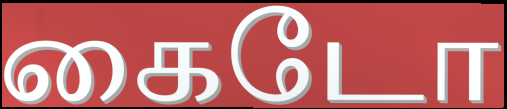
கைடோ